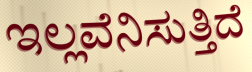
ಇಲ್ಲವೆನಿಸುತ್ತಿದೆ